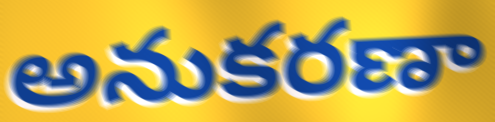
అనుకరణా